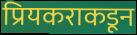
प्रियकराकडून